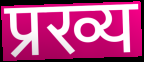
प्रख्य